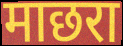
माछरा